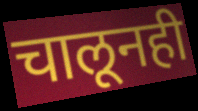
चालूनही